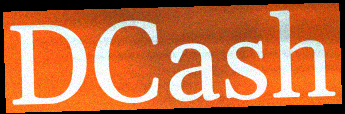
DCash